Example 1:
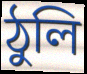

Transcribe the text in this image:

ঠুলি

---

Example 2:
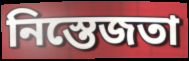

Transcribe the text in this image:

নিস্তেজতা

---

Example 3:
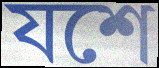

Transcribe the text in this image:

যশে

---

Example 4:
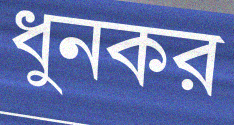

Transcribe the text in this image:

ধুনকর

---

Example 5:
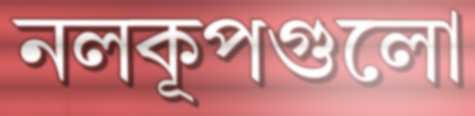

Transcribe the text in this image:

নলকূপগুলো